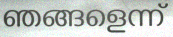
ഞങ്ങളെന്ന്